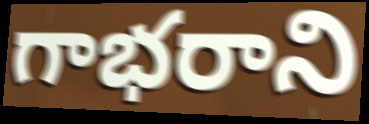
గాభరాని